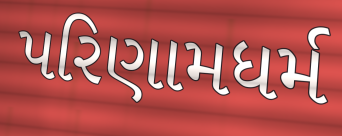
પરિણામધર્મ